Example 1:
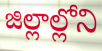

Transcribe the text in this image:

జిల్లాల్లోని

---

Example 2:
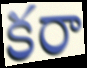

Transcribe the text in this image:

కరా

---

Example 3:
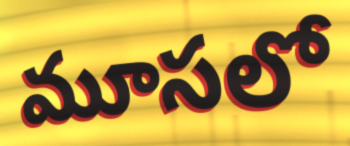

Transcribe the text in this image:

మూసలో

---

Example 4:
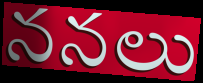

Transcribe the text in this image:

ననలు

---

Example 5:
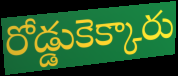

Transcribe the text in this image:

రోడ్డుకెక్కారు